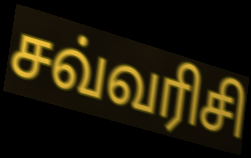
சவ்வரிசி